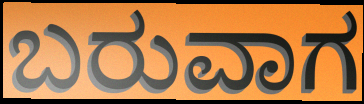
ಬರುವಾಗ